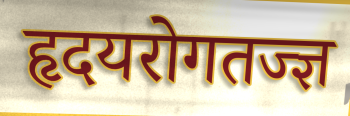
हृदयरोगतज्ज्ञ